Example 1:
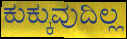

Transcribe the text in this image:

ಕುಕ್ಕುವುದಿಲ್ಲ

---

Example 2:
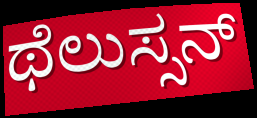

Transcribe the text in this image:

ಥೆಲುಸ್ಸನ್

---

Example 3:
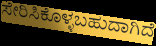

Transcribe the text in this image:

ಸೇರಿಸಿಕೊಳ್ಳಬಹುದಾಗಿದೆ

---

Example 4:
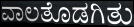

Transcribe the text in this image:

ವಾಲತೊಡಗಿತು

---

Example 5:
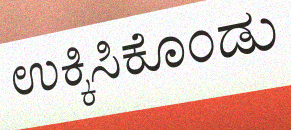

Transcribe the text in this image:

ಉಕ್ಕಿಸಿಕೊಂಡು